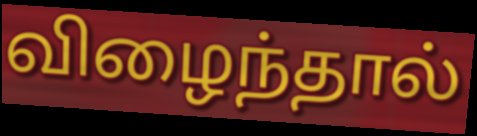
விழைந்தால்